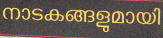
നാടകങ്ങളുമായി